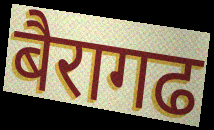
बैरागढ